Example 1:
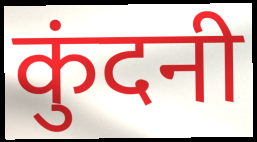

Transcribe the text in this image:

कुंदनी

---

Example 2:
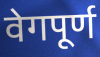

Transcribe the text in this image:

वेगपूर्ण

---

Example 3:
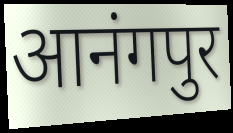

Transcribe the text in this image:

आनंगपुर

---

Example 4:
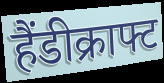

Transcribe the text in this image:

हैंडीक्राफ्ट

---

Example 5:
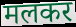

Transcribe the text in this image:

मलकर